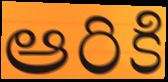
ఆరికి